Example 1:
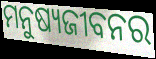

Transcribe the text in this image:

ମନୁଷ୍ୟଜୀବନର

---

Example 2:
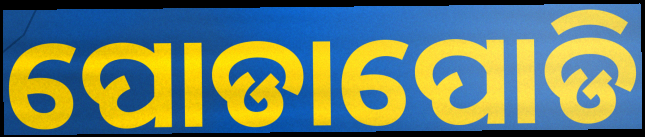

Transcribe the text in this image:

ପୋଡାପୋଡି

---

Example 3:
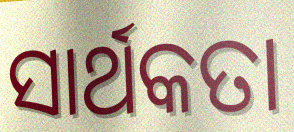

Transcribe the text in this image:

ସାର୍ଥକତା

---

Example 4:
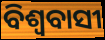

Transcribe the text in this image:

ବିଶ୍ୱବାସୀ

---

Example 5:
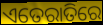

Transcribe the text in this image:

ଏତେରାତିରେ